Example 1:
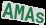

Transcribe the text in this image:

AMAs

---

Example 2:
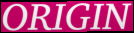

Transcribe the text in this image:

ORIGIN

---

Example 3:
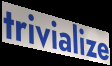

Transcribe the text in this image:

trivialize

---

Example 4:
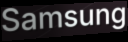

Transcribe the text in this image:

Samsung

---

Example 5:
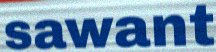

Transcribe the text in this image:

sawant